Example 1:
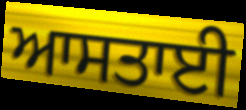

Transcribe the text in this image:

ਆਸਤਾਈ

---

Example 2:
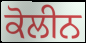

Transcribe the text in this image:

ਕੋਲੀਨ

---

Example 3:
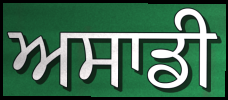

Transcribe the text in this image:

ਅਸਾਡੀ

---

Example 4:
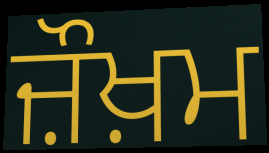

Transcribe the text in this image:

ਜ਼ੌਖ਼ਮ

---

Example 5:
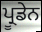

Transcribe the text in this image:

ਪ੍ਰੂਡੇਨ